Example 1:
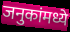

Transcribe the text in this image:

जनुकांमध्ये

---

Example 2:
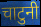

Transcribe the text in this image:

चाटुनी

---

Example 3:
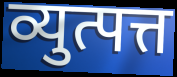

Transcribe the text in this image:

व्युत्पत्त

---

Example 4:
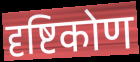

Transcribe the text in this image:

दृष्टिकोण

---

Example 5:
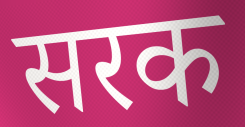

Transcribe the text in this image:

सरक